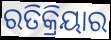
ରତିକ୍ରିୟାର